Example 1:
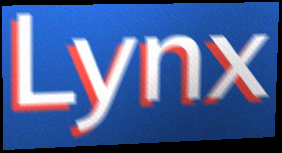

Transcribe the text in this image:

Lynx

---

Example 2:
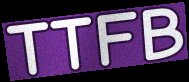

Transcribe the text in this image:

TTFB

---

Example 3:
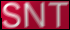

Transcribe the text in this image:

SNT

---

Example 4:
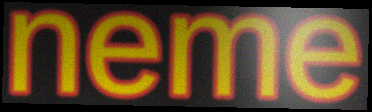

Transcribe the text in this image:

neme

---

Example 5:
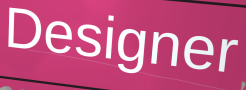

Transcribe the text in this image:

Designer